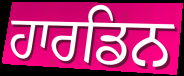
ਹਾਰਡਿਨ